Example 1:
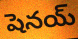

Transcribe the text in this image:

షెనయ్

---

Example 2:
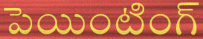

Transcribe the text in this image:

పెయింటింగ్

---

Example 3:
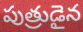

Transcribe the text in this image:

పుత్రుడైన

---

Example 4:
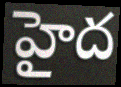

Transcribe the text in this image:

హైద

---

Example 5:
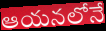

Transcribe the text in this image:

ఆయనలోనే